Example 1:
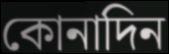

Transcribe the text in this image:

কোনাদিন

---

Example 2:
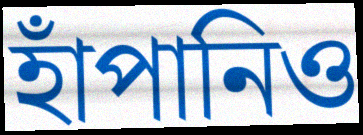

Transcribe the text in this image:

হাঁপানিও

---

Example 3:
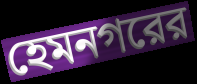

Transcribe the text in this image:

হেমনগরের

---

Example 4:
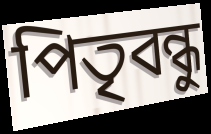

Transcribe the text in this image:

পিতৃবন্ধু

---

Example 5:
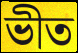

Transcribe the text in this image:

ভীত